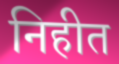
निहीत